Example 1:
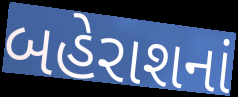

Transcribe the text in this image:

બહેરાશનાં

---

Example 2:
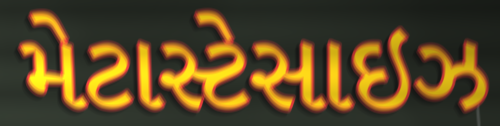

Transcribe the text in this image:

મેટાસ્ટેસાઇઝ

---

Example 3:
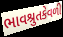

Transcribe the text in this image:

ભાવશ્રુતકેવળી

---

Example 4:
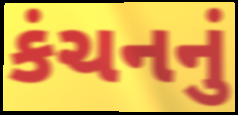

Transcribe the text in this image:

કંચનનું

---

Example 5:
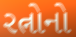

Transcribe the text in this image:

રત્નોનો